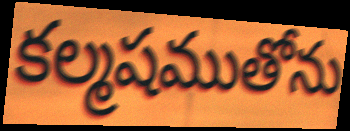
కల్మషముతోను